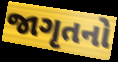
જાગૃતનો